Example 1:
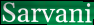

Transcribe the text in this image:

Sarvani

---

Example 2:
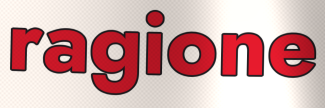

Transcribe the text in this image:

ragione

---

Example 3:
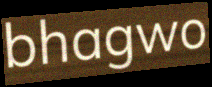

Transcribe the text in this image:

bhagwo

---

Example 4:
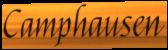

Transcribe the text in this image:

Camphausen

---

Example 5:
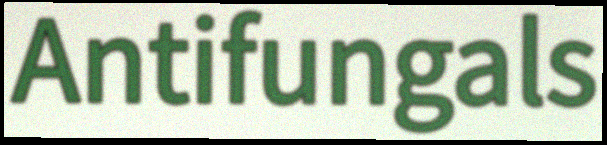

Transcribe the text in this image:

Antifungals